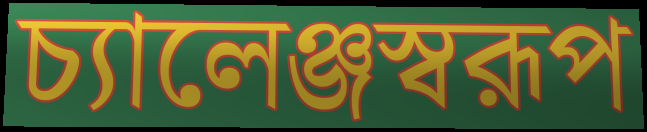
চ্যালেঞ্জস্বরূপ